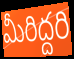
మీరిద్దరి